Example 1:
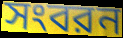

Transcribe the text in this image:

সংবরন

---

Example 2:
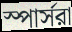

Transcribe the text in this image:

স্পার্সরা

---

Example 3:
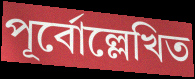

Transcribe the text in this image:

পূর্বোল্লেখিত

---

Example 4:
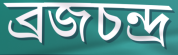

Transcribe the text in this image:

ব্রজচন্দ্র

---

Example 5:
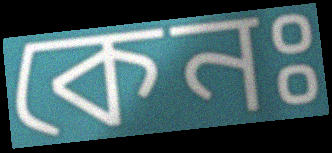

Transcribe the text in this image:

কেনঃ